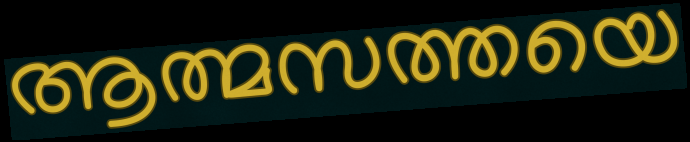
ആത്മസത്തയെ